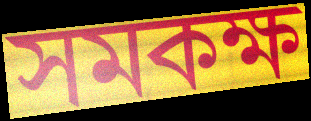
সমকক্ষ